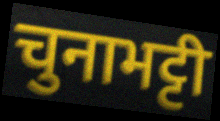
चुनाभट्टी